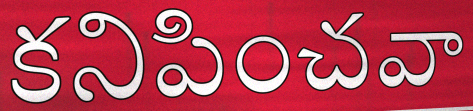
కనిపించవా